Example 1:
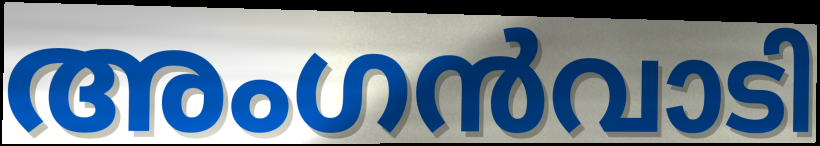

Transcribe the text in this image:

അംഗൻവാടി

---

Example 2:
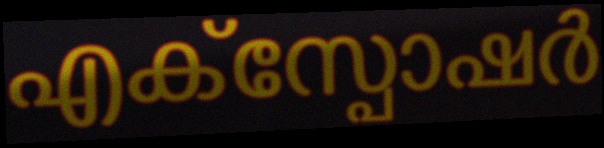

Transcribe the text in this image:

എക്സ്പോഷർ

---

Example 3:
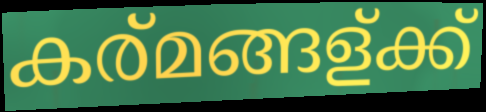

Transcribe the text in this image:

കര്മങ്ങള്ക്ക്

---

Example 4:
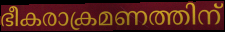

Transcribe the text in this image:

ഭീകരാക്രമണത്തിന്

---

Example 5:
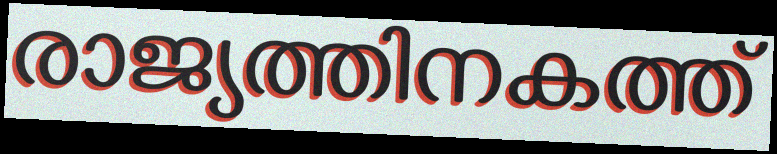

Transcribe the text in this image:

രാജ്യത്തിനകത്ത്